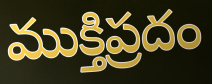
ముక్తిప్రదం